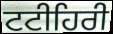
ਟਟੀਹਿਰੀ